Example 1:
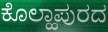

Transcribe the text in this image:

ಕೊಲ್ಹಾಪುರದ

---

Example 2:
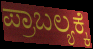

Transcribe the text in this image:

ಪ್ರಾಬಲ್ಯಕ್ಕೆ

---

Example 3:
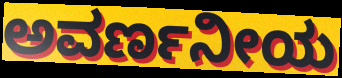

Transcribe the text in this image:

ಅವರ್ಣನೀಯ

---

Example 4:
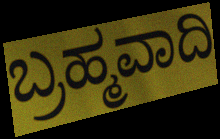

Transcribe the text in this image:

ಬ್ರಹ್ಮವಾದಿ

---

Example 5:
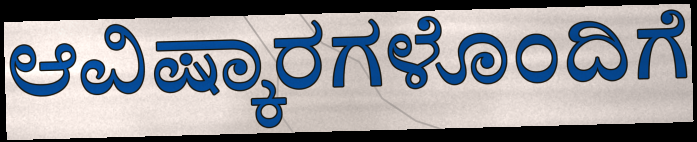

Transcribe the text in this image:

ಆವಿಷ್ಕಾರಗಳೊಂದಿಗೆ